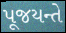
પૂજયન્તે